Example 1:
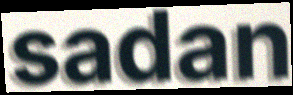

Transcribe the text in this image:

sadan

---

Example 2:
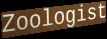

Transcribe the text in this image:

Zoologist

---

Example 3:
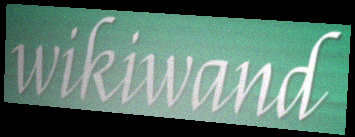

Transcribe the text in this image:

wikiwand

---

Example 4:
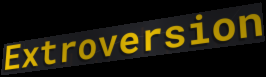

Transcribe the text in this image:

Extroversion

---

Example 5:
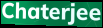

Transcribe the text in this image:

Chaterjee